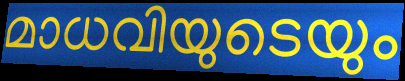
മാധവിയുടെയും